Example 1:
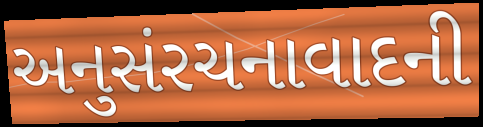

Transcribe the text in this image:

અનુસંરચનાવાદની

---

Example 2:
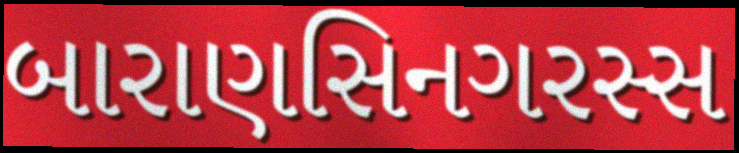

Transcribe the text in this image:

બારાણસિનગરસ્સ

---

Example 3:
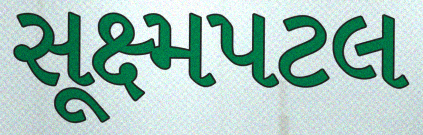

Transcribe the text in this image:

સૂક્ષ્મપટલ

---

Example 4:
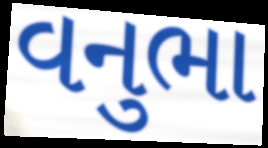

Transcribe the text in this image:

વનુભા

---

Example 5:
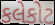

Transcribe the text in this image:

કલેકોટ